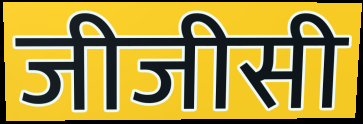
जीजीसी